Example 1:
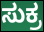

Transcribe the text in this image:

ಸುಕ್ರ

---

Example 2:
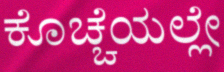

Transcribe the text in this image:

ಕೊಚ್ಚೆಯಲ್ಲೇ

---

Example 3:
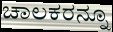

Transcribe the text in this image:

ಚಾಲಕರನ್ನೂ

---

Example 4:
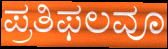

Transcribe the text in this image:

ಪ್ರತಿಫಲವೂ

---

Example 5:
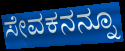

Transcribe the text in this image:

ಸೇವಕನನ್ನೂ